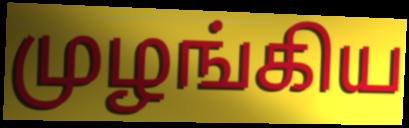
முழங்கிய